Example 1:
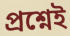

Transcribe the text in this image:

প্রশ্নেই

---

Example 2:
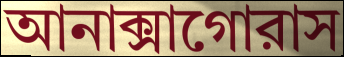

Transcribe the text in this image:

আনাক্সাগোরাস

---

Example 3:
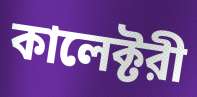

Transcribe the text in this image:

কালেক্টরী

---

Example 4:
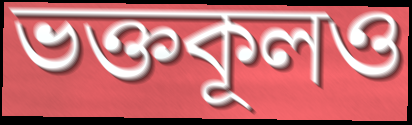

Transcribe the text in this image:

ভক্তকূলও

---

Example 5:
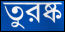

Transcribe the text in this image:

তুরষ্ক